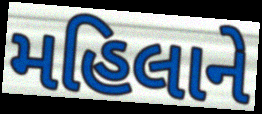
મહિલાને